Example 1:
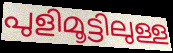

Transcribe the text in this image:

പുളിമൂട്ടിലുള്ള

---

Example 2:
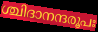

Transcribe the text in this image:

ശ്ചിദാനന്ദരൂപഃ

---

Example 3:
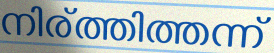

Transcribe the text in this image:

നിര്ത്തിത്തന്ന്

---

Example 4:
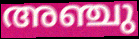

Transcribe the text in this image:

അഞ്ചു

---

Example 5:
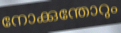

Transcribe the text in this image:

നോക്കുന്തോറും